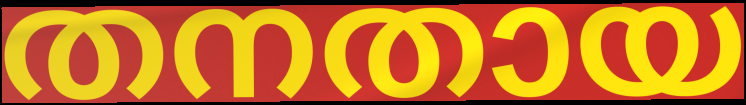
തനതായ